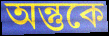
অন্তুকে